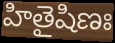
హితైషిణః